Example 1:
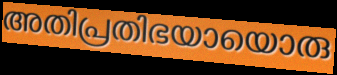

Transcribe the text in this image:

അതിപ്രതിഭയായൊരു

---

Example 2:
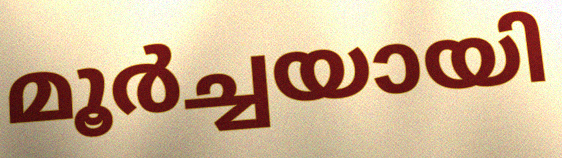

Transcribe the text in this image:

മൂർച്ചയായി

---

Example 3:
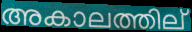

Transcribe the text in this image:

അകാലത്തില്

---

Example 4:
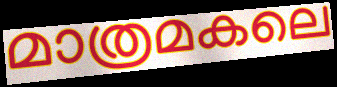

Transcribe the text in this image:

മാത്രമകലെ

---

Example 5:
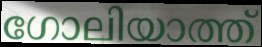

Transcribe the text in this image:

ഗോലിയാത്ത്